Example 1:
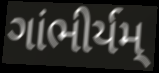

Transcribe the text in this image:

ગાંભીર્યમ્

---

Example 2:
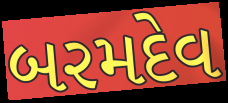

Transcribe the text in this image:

બરમદેવ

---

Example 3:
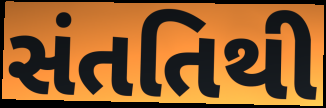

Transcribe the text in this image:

સંતતિથી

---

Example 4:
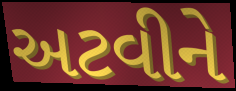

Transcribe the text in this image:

અટવીને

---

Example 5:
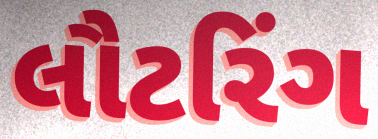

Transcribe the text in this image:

લૌટરિંગ